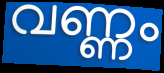
വണ്ണം